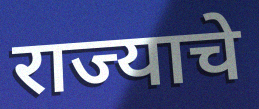
राज्याचे